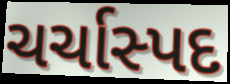
ચર્ચાસ્પદ